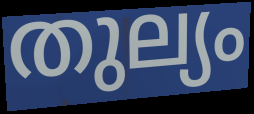
തുല്യം